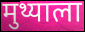
मुथ्याला